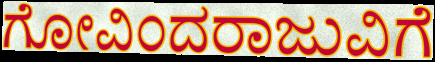
ಗೋವಿಂದರಾಜುವಿಗೆ